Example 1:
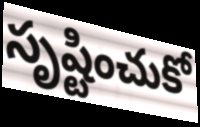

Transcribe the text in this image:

సృష్టించుకో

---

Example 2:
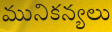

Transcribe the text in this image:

మునికన్యలు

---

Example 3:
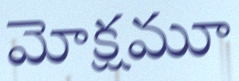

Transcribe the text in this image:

మోక్షమూ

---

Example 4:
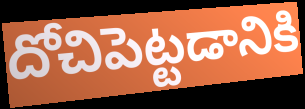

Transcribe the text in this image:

దోచిపెట్టడానికి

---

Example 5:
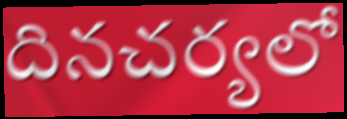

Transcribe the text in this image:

దినచర్యలో